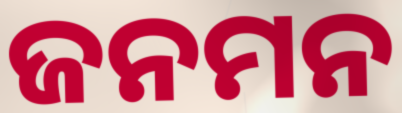
ଜନମନ